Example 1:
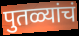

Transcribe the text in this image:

पुतळ्यांचं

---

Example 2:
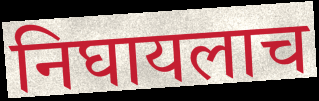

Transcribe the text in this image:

निघायलाच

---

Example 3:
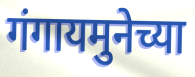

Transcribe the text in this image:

गंगायमुनेच्या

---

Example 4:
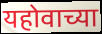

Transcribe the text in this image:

यहोवाच्या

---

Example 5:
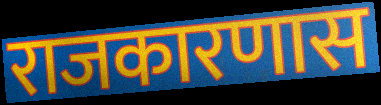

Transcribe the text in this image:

राजकारणास